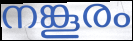
നങ്കൂരം